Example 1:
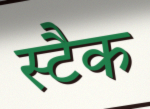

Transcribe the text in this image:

स्टैक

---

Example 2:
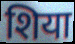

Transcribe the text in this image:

शिया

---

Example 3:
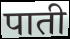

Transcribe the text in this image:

पाती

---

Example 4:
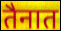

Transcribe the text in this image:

तैनात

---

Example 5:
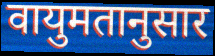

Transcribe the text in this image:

वायुमतानुसार